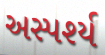
અસ્પર્શ્ય